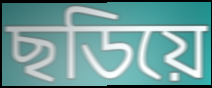
ছডিয়ে